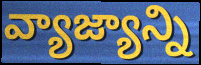
వ్యాజ్యాన్ని